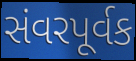
સંવરપૂર્વક